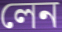
লেন